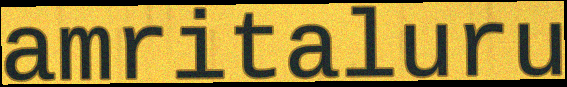
amritaluru